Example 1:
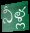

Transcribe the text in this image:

నీళ్ల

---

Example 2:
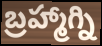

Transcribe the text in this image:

బ్రహ్మాగ్ని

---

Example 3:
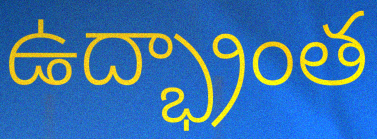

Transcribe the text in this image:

ఉద్భ్రాంత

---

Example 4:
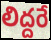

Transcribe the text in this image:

లిద్దరే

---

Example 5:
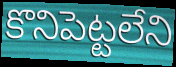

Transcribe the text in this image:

కొనిపెట్టలేని